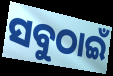
ସବୁଠାଇଁ